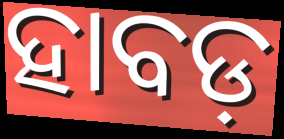
ହାବଡ଼